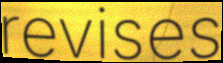
revises